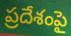
ప్రదేశంపై